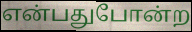
என்பதுபோன்ற